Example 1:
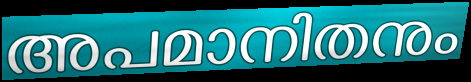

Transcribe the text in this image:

അപമാനിതനും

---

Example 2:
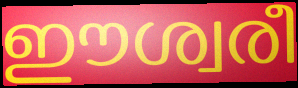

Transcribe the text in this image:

ഈശ്വരീ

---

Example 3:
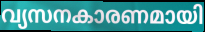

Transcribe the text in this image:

വ്യസനകാരണമായി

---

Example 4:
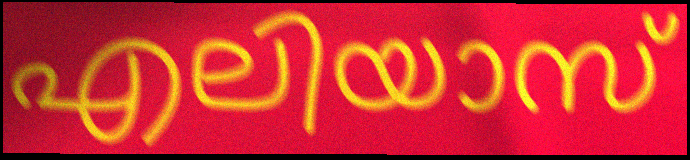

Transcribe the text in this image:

എലിയാസ്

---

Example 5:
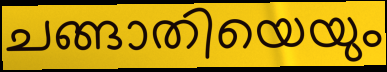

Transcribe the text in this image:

ചങ്ങാതിയെയും